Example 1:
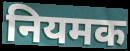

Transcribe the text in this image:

नियमक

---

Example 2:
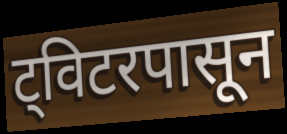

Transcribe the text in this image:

ट्विटरपासून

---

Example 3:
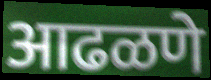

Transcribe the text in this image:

आढळणे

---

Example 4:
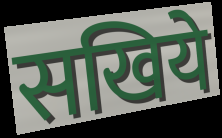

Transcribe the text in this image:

सखिये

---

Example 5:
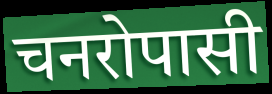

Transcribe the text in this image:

चनरोपासी